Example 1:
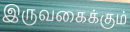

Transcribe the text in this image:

இருவகைக்கும்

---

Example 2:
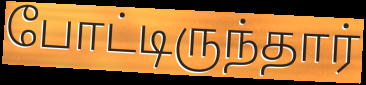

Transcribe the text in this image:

போட்டிருந்தார்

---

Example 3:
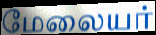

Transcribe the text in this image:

மேலையர்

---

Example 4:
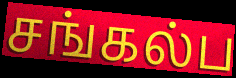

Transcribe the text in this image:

சங்கல்ப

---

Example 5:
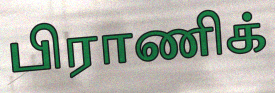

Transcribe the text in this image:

பிராணிக்